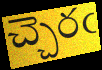
చ్చెరఁ